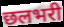
छलभरी